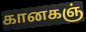
கானகஞ்